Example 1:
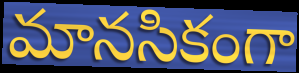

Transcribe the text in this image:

మానసికంగా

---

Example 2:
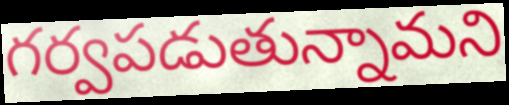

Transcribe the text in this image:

గర్వపడుతున్నామని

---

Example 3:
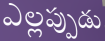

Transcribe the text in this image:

ఎల్లప్పుడు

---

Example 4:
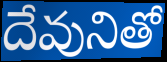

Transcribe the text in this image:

దేవునితో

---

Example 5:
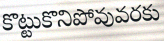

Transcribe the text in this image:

కొట్టుకొనిపోవువరకు